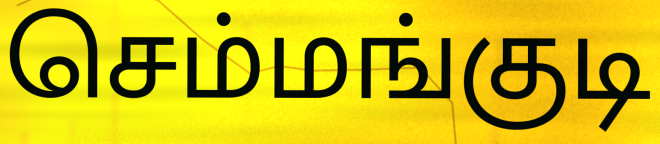
செம்மங்குடி